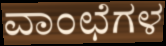
ವಾಂಛೆಗಳ